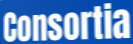
Consortia